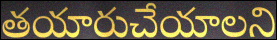
తయారుచేయాలని